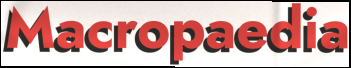
Macropaedia